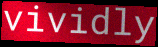
vividly